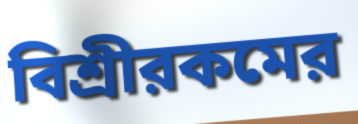
বিশ্রীরকমের